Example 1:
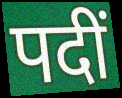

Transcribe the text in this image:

पदीं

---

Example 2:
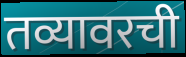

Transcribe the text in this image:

तव्यावरची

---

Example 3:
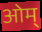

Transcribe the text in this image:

ओम्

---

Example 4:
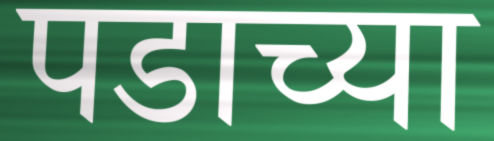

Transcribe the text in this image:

पडाच्या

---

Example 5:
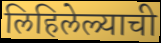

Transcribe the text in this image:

लिहिलेल्याची